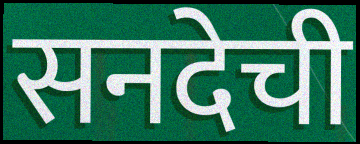
सनदेची